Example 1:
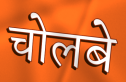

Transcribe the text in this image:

चोलबे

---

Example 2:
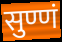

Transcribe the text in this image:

सुण्णं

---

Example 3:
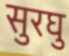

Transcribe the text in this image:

सुरघु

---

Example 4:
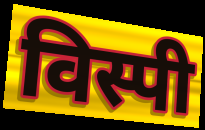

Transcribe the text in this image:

विस्पी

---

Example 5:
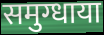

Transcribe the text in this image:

समुग्धाया